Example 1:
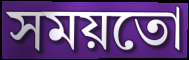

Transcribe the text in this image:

সময়তো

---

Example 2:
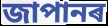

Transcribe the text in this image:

জাপানৰ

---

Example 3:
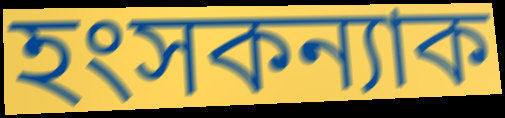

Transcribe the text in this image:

হংসকন্যাক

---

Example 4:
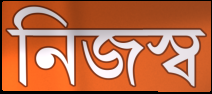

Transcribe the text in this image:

নিজস্ব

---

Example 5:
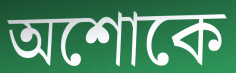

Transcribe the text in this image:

অশোকে